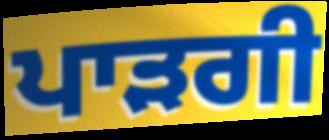
ਪਾੜਗੀ